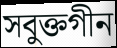
সবুক্তগীন